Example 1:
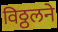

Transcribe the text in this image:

विठ्ठलने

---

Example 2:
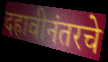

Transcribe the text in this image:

दहावीनंतरचे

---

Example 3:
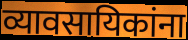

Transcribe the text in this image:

व्यावसायिकांना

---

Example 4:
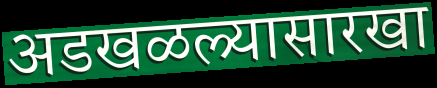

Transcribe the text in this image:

अडखळल्यासारखा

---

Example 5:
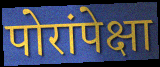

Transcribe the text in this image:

पोरांपेक्षा